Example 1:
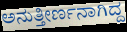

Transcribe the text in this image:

ಅನುತ್ತೀರ್ಣನಾಗಿದ್ದ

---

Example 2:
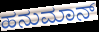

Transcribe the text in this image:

ಹನುಮಾನ್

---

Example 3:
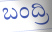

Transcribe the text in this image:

ಬಂದ್ರಿ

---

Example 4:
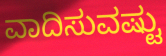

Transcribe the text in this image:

ವಾದಿಸುವಷ್ಟು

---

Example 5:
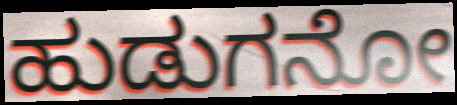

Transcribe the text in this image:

ಹುಡುಗನೋ